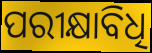
ପରୀକ୍ଷାବିଧି